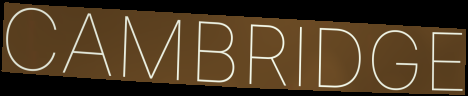
CAMBRIDGE